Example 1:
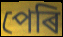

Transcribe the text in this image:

পেৰি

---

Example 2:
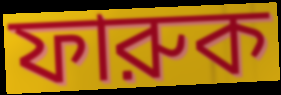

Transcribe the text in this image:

ফাৰুক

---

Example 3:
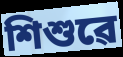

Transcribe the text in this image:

শিশুৱে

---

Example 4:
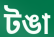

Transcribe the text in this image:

টঙা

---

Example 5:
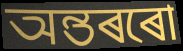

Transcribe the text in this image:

অন্তৰৰো